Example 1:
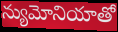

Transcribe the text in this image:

న్యుమోనియాతో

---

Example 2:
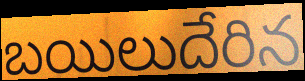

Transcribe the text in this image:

బయిలుదేరిన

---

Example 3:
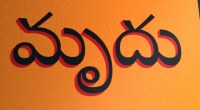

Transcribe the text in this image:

మృదు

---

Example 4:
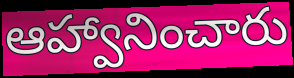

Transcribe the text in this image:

ఆహ్వానించారు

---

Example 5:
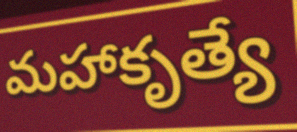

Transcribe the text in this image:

మహాకృత్యే